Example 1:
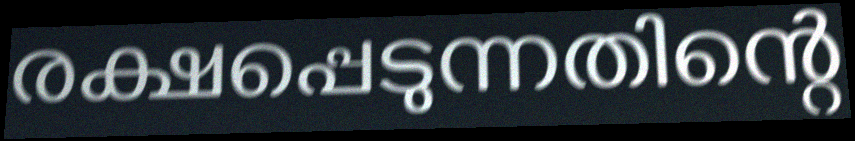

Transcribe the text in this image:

രക്ഷപ്പെടുന്നതിന്റെ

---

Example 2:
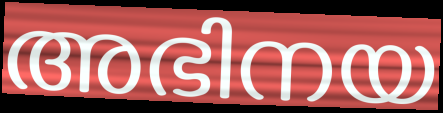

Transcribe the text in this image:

അഭിനയ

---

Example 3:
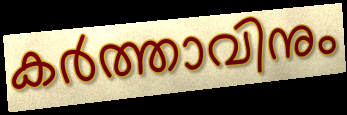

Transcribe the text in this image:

കർത്താവിനും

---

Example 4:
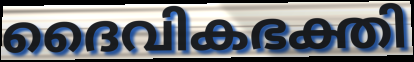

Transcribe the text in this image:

ദൈവികഭക്തി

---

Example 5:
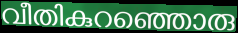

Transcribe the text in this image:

വീതികുറഞ്ഞൊരു